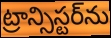
ట్రాన్సిస్టర్‌ను